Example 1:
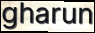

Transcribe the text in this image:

gharun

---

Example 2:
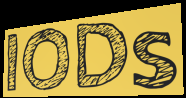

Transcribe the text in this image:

IODs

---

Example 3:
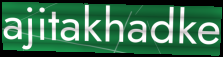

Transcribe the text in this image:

ajitakhadke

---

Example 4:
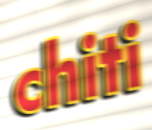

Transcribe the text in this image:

chiti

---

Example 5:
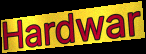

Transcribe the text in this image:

Hardwar